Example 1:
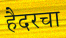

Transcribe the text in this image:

हैदरचा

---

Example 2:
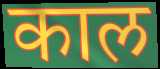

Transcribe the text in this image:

काल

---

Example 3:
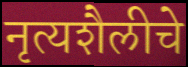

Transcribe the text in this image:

नृत्यशैलीचे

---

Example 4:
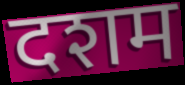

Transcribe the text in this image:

दशम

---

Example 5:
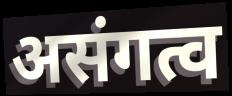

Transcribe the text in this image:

असंगत्व